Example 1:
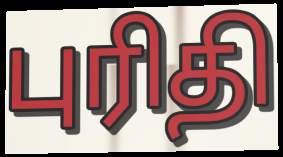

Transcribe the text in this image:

புரிதி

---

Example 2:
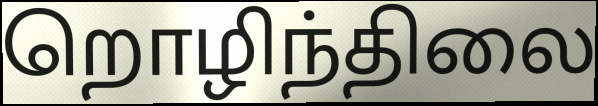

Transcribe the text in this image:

றொழிந்திலை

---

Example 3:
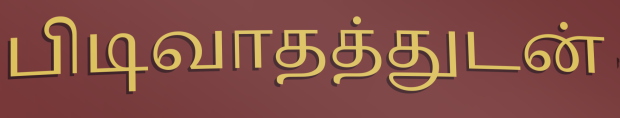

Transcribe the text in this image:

பிடிவாதத்துடன்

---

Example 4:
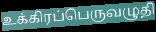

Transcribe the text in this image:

உக்கிரப்பெருவழுதி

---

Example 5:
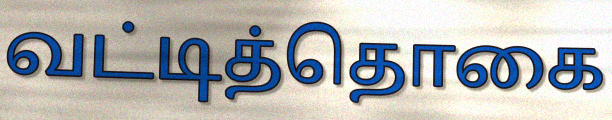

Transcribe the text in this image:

வட்டித்தொகை